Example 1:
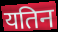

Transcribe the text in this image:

यतिन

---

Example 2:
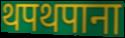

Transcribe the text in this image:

थपथपाना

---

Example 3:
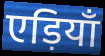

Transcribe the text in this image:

एड़ियाँ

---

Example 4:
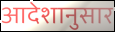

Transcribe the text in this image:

आदेशानुसार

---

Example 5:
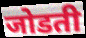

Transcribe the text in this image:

जोडती